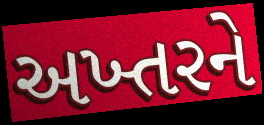
અખ્તરને